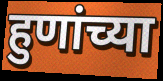
हुणांच्या